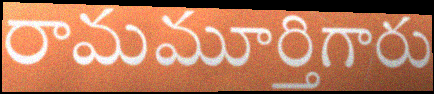
రామమూర్తిగారు